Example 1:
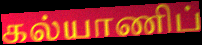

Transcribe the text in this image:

கல்யாணிப்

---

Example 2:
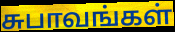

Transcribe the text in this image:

சுபாவங்கள்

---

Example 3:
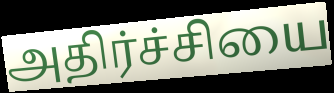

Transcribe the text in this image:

அதிர்ச்சியை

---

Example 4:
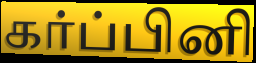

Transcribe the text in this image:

கர்ப்பினி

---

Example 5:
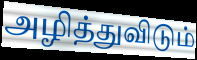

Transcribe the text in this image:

அழித்துவிடும்